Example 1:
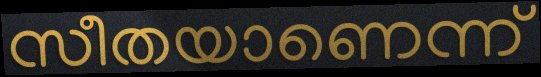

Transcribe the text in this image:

സീതയാണെന്ന്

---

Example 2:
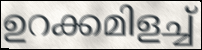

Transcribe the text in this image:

ഉറക്കമിളച്ച്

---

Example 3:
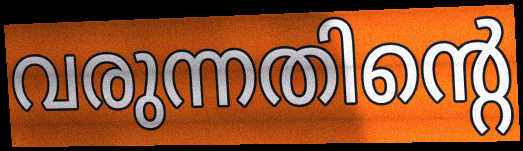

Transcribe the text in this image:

വരുന്നതിന്റെ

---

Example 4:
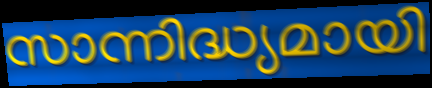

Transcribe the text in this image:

സാന്നിദ്ധ്യമായി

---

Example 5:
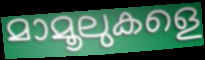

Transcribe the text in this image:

മാമൂലുകളെ